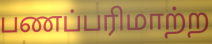
பணப்பரிமாற்ற